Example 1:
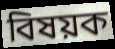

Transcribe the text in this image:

বিষয়ক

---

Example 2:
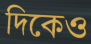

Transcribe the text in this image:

দিকেও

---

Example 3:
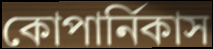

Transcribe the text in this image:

কোপার্নিকাস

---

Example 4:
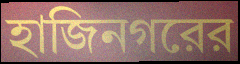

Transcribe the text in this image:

হাজিনগরের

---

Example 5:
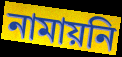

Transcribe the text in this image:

নামায়নি